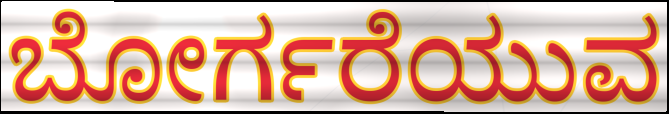
ಬೋರ್ಗರೆಯುವ